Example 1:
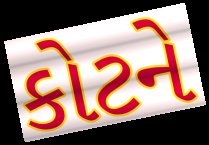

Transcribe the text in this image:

કોટને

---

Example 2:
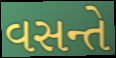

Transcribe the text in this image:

વસન્તે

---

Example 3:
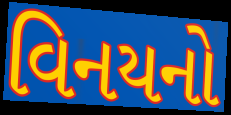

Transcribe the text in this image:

વિનયનો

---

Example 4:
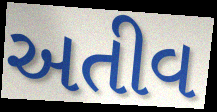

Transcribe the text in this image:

અતીવ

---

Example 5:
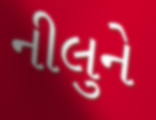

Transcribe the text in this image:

નીલુને